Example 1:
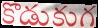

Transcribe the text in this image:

కొడుకుగ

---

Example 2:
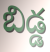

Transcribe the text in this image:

బిడ్డ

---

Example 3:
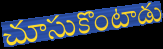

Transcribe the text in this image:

చూసుకొంటాడు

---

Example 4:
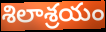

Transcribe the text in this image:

శిలాశ్రయం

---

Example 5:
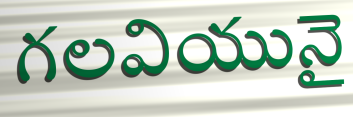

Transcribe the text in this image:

గలవియునై